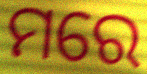
ମରେ